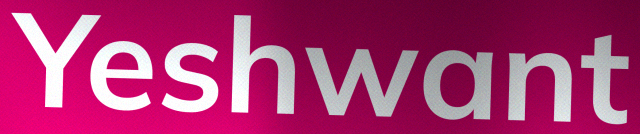
Yeshwant